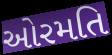
ઓરમતિ